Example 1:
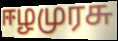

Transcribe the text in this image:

ஈழமுரசு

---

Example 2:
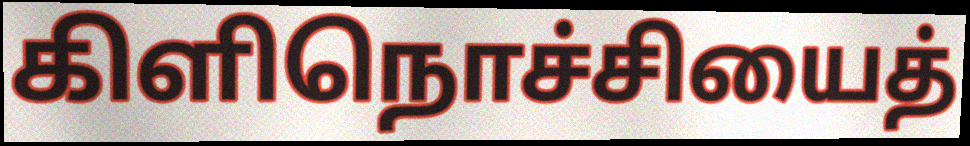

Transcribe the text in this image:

கிளிநொச்சியைத்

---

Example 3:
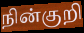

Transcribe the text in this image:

நின்குறி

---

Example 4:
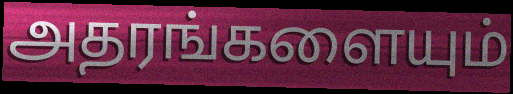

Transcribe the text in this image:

அதரங்களையும்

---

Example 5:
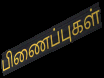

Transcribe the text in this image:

பிணைப்புகள்